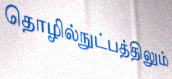
தொழில்நுட்பத்திலும்